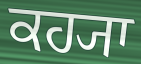
ਕਹ੍ਯਾ